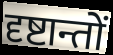
दृष्टान्तों